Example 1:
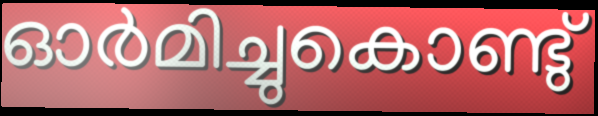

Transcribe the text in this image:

ഓർമിച്ചുകൊണ്ടു്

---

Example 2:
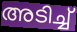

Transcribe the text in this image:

അടിച്ച്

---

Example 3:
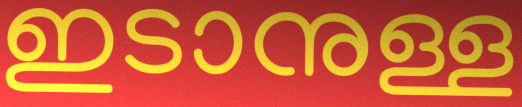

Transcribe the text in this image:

ഇടാനുള്ള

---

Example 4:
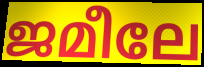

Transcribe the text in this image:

ജമീലേ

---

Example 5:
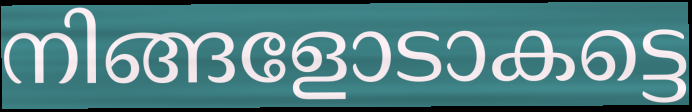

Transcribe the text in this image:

നിങ്ങളോടാകട്ടെ